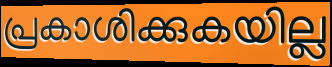
പ്രകാശിക്കുകയില്ല